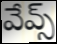
వేవ్స్